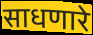
साधणारे